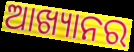
ଆଖ୍ୟାନର